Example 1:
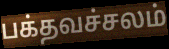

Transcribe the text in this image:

பக்தவச்சலம்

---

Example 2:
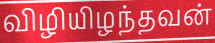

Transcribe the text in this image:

விழியிழந்தவன்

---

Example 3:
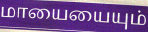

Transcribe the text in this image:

மாயையையும்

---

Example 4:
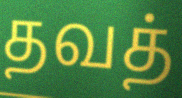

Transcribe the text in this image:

தவத்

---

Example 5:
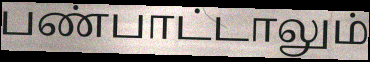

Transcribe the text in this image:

பண்பாட்டாலும்